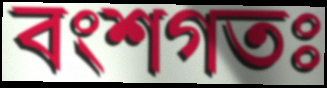
বংশগতঃ